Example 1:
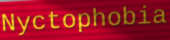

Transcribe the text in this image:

Nyctophobia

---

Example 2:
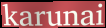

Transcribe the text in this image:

karunai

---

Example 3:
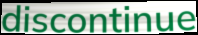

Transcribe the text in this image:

discontinue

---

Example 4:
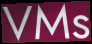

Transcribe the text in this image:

VMs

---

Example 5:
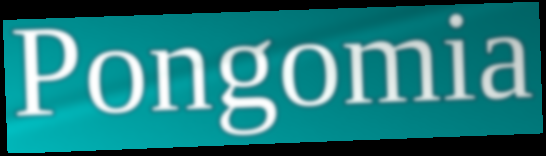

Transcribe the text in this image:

Pongomia